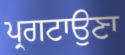
ਪ੍ਰਗਟਾਉਣਾ